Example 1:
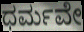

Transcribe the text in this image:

ಧರ್ಮವೇ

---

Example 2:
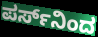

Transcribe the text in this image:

ಪರ್ಸ್‌ನಿಂದ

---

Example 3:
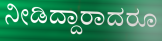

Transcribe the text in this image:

ನೀಡಿದ್ದಾರಾದರೂ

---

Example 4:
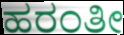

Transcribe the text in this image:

ಹರಂತೀ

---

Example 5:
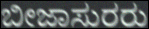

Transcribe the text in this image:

ಬೀಜಾಸುರರು